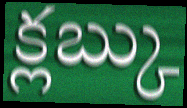
క్లబ్కు